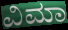
ವಿಮಾ